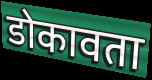
डोकावता